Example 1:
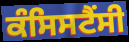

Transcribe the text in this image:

ਕੰਸਿਸਟੈਂਸੀ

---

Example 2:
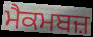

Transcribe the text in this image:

ਮੈਕਮਬਜ਼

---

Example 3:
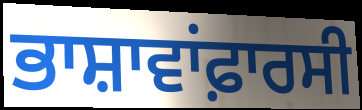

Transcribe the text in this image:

ਭਾਸ਼ਾਵਾਂਫ਼ਾਰਸੀ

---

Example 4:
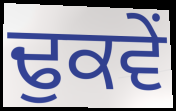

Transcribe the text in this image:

ਢੁਕਵੇਂ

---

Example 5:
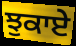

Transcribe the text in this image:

ਝੁਕਾਏ